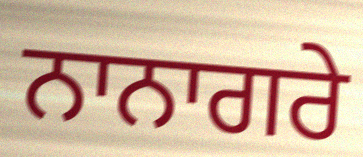
ਨਾਨਾਗਰੇ